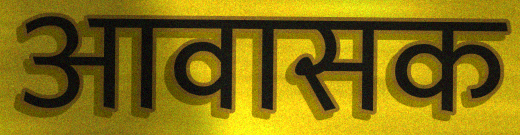
आवासक